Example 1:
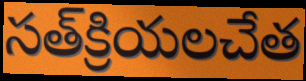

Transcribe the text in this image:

సత్‌క్రియలచేత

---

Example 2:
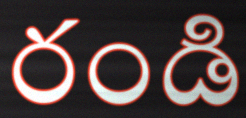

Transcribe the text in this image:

రండి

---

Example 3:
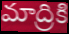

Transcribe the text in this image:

మాద్రికి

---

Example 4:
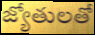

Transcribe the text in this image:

జ్యోతులతో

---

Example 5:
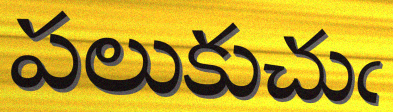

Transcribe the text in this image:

పలుకుచుఁ